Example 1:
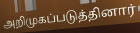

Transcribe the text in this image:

அறிமுகப்படுத்தினார்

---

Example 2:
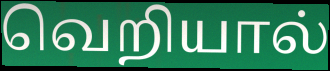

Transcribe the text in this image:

வெறியால்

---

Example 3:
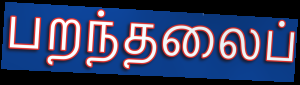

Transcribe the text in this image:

பறந்தலைப்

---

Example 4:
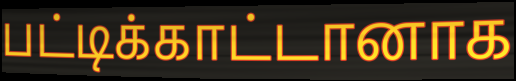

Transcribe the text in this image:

பட்டிக்காட்டானாக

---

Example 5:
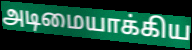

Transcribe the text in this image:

அடிமையாக்கிய